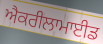
ਐਕਰੀਲਾਮਾਈਡ